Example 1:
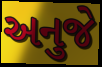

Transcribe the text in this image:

અનુજે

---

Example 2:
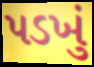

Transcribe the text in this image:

પડખું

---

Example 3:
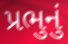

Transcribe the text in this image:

પ્રભુનું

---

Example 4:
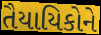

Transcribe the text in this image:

તૈયાયિકોને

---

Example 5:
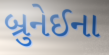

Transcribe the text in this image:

બ્રુનેઈના